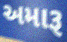
અમારૂ